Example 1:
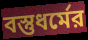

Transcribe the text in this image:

বস্তুধর্মের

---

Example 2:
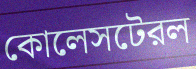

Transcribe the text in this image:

কোলেসটেরল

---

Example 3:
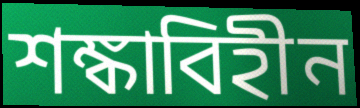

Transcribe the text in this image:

শঙ্কাবিহীন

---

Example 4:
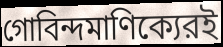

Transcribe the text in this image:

গোবিন্দমাণিক্যেরই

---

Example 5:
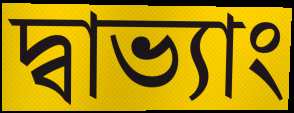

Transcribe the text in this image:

দ্বাভ্যাং